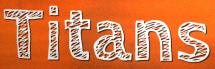
Titans